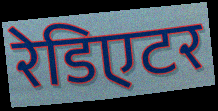
रेडिएटर